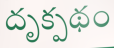
దృక్పథం